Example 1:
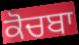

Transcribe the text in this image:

ਕੋਚਬਾ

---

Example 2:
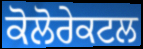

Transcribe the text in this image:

ਕੋਲੋਰੇਕਟਲ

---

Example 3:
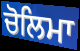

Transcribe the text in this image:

ਚੋਲਿਮਾ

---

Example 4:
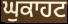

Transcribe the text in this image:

ਘੁਕਾਹਟ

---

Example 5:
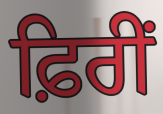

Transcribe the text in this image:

ਫ਼ਿਰੀਂ